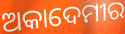
ଅକାଦେମୀର